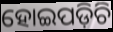
ହୋଇପଡ଼ିଚି